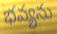
భవ్యను